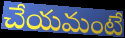
చేయమంటే